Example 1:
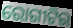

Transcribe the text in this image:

ରୋଗୀଟିର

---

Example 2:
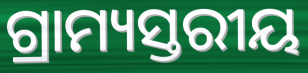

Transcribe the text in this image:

ଗ୍ରାମ୍ୟସ୍ତରୀୟ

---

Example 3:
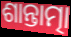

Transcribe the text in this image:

ଶାନ୍ତାତ୍ମା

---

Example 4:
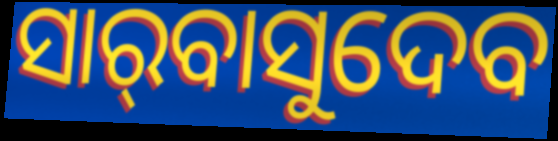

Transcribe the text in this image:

ସାର୍‌ବାସୁଦେବ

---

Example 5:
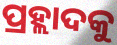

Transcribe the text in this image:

ପ୍ରହ୍ଲାଦକୁ